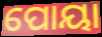
ପୋୟା